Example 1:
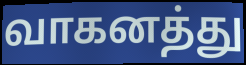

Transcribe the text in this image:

வாகனத்து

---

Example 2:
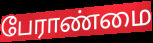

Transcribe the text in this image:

பேராண்மை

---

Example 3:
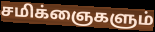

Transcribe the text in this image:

சமிக்ஞைகளும்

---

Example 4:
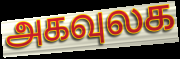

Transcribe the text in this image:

அகவுலக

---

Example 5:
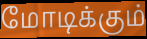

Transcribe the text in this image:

மோடிக்கும்